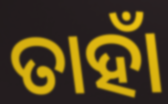
ତାହାଁ